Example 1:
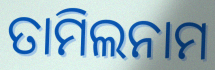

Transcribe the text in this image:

ତାମିଲନାମ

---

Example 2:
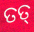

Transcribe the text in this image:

ତତ୍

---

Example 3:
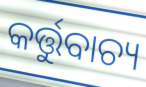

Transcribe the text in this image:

କର୍ତ୍ତୁବାଚ୍ୟ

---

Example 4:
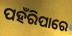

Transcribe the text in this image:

ପହଁରିପାରେ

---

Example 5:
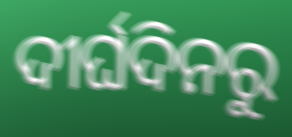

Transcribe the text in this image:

ଦୀର୍ଘଦିନରୁ